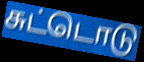
சுட்டொடு